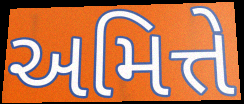
અમિત્તે